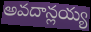
అవదాన్లయ్య